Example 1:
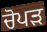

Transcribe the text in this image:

ਚੋਪੜ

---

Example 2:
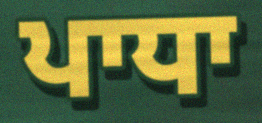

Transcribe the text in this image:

ਪਾਧਾ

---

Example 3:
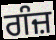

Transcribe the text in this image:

ਗੰਜ਼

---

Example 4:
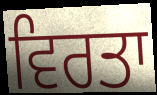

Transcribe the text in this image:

ਵਿਰਤਾ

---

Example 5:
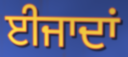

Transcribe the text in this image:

ਈਜਾਦਾਂ